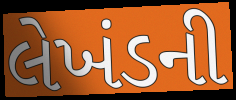
લેખંડની